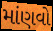
માંણવો